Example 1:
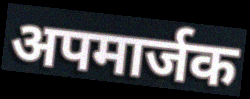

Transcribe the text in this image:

अपमार्जक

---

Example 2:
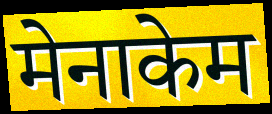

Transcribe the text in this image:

मेनाकेम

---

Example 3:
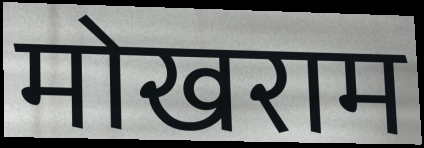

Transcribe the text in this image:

मोखराम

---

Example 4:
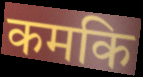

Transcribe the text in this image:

कमकि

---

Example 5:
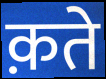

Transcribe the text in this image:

क़ते